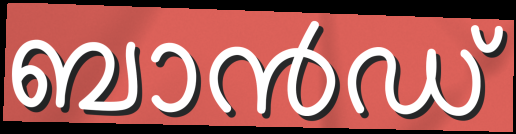
ബാൻഡ്